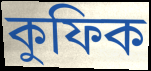
কুফিক